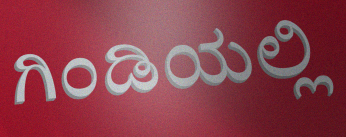
ಗಿಂಡಿಯಲ್ಲಿ